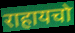
राहायचो